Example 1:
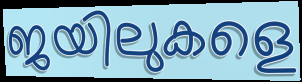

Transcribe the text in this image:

ജയിലുകളെ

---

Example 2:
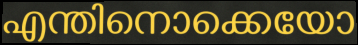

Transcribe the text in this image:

എന്തിനൊക്കെയോ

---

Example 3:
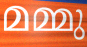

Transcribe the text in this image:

മമ്മു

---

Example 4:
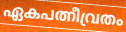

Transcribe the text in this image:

ഏകപത്നീവ്രതം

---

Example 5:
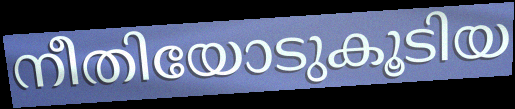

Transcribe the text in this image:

നീതിയോടുകൂടിയ